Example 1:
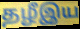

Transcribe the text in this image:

தழீஇய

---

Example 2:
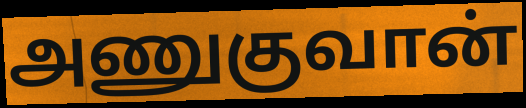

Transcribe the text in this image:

அணுகுவான்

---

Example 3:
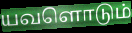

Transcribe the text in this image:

யவளொடும்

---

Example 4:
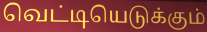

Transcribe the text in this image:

வெட்டியெடுக்கும்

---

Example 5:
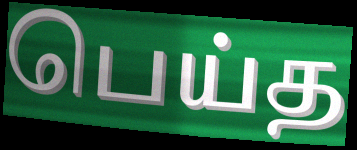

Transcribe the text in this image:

பெய்த